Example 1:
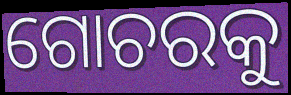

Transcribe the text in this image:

ଗୋଚରକୁ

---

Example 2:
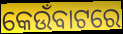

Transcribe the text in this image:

କେଉଁବାଟରେ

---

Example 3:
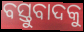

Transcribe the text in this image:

ବସ୍ତୁବାଦକୁ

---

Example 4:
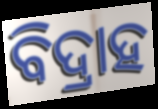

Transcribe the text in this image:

ବିଦ୍ରାହ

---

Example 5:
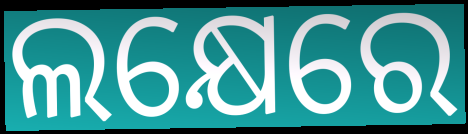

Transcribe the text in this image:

ଲକ୍ଷେରେ